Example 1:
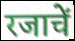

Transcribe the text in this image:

रजाचें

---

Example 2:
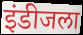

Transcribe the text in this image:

इंडीजला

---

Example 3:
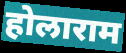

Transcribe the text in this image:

होलाराम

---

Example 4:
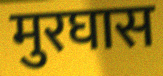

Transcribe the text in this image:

मुरघास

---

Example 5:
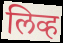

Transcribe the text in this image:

लिव्ह